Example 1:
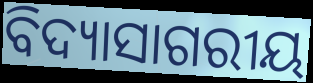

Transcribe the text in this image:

ବିଦ୍ୟାସାଗରୀୟ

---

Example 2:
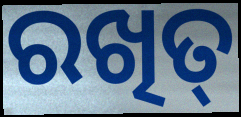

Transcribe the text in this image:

ରଖିତ୍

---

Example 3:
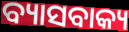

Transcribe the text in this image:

ବ୍ୟାସବାକ୍ୟ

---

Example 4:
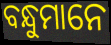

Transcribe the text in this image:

ବନ୍ଧୁମାନେ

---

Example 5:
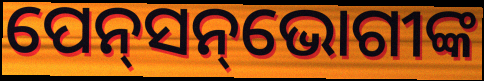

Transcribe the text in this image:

ପେନ୍‌ସନ୍‌ଭୋଗୀଙ୍କ